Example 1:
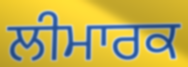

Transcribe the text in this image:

ਲੀਮਾਰਕ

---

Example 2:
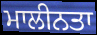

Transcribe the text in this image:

ਮਾਲੀਨਤਾ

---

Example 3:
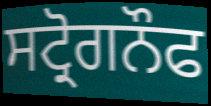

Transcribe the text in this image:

ਸਟ੍ਰੋਗਨੌਫ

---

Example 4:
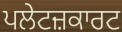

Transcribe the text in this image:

ਪਲੇਟਜ਼ਕਾਰਟ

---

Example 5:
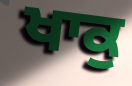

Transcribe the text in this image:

ਖਾਕੁ